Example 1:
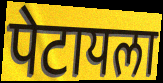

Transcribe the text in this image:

पेटायला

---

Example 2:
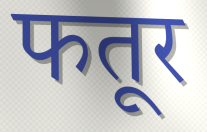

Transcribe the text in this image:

फतूर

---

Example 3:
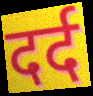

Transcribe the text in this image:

दर्द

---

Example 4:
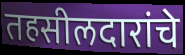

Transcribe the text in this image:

तहसीलदारांचे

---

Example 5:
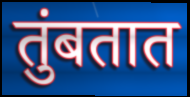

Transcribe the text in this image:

तुंबतात